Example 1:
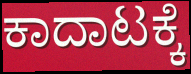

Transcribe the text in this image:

ಕಾದಾಟಕ್ಕೆ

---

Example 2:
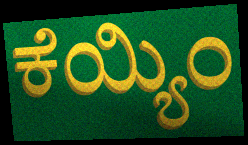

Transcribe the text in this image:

ಕೆಯ್ಯಿಂ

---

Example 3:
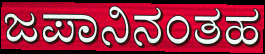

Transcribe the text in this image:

ಜಪಾನಿನಂತಹ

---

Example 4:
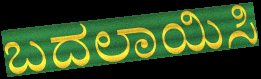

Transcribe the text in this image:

ಬದಲಾಯಿಸಿ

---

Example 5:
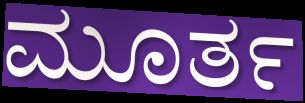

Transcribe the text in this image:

ಮೂರ್ತ